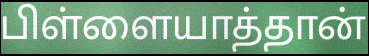
பிள்ளையாத்தான்